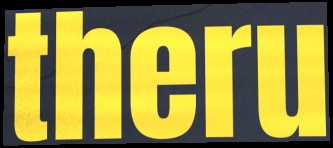
theru